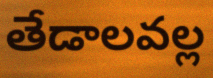
తేడాలవల్ల